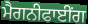
ਮੈਗਨੀਫਾਈਂਗ